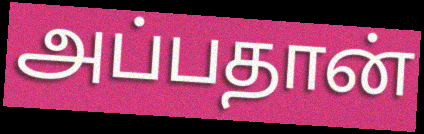
அப்பதான்